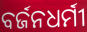
ବର୍ଜନଧର୍ମୀ